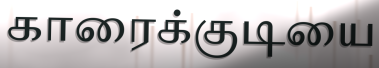
காரைக்குடியை